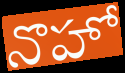
నొహో